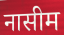
नासीम